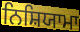
ਨਿਸ਼ਿਯਾਮਾ